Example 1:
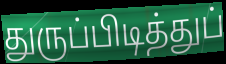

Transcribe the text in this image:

துருப்பிடித்துப்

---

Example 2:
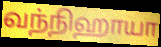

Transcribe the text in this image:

வந்நிஹாயா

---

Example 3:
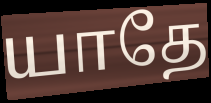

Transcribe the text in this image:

யாதே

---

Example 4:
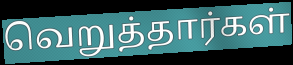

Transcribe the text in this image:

வெறுத்தார்கள்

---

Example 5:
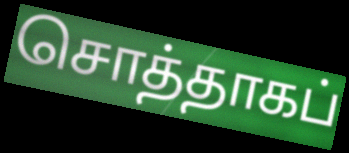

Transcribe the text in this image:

சொத்தாகப்